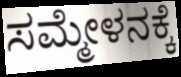
ಸಮ್ಮೇಳನಕ್ಕೆ